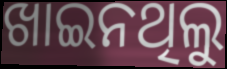
ଖାଇନଥିଲୁ